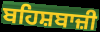
ਬਹਿਸ਼ਬਾਜ਼ੀ